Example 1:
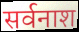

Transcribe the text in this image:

सर्वनाश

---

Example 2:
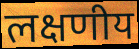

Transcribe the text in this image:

लक्षणीय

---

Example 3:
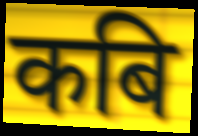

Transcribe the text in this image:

कबि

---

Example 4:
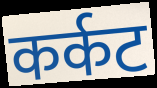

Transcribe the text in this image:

कर्कट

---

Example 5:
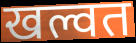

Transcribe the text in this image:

खल्वत